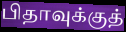
பிதாவுக்குத்